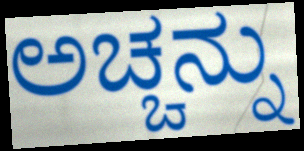
ಅಚ್ಚನ್ನು